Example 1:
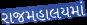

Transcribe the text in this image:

રાજમહાલયમાં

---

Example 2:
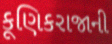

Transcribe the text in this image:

કૂણિકરાજાની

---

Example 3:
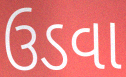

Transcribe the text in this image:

ઉડવા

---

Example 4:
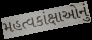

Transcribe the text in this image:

મહત્વકાંક્ષાઓનું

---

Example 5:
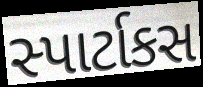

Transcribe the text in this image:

સ્પાર્ટાકસ